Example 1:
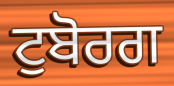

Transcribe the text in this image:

ਟੁਬੋਰਗ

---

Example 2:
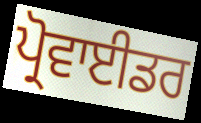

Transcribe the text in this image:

ਪ੍ਰੋਵਾਈਡਰ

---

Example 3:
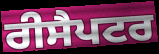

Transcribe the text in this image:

ਰੀਸੈਪਟਰ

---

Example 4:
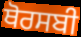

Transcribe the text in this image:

ਥੋਰਸਬੀ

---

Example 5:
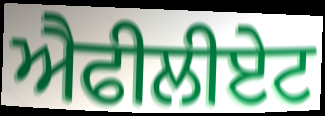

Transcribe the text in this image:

ਐਫੀਲੀਏਟ